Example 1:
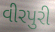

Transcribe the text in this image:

વીરપુરી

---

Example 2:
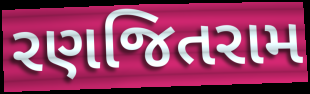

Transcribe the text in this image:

રણજિતરામ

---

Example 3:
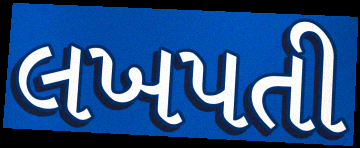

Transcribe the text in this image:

લખપતી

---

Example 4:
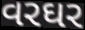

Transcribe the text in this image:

વરઘર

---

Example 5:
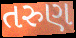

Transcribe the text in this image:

તરુણ